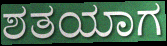
ಶತಯಾಗ